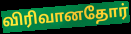
விரிவானதோர்